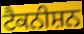
ਟੈਕਨੀਸ਼ਨ